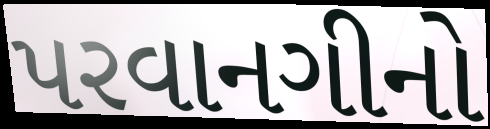
પરવાનગીનો